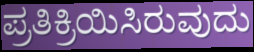
ಪ್ರತಿಕ್ರಿಯಿಸಿರುವುದು